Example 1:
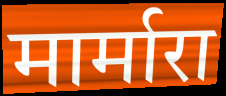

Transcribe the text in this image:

मार्मारा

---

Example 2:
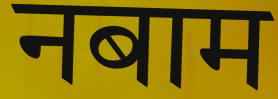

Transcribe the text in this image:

नबाम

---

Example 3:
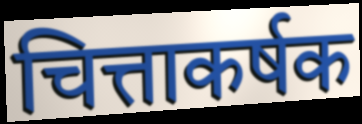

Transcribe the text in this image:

चित्ताकर्षक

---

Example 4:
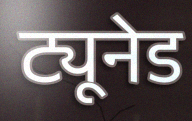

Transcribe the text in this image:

ट्यूनेड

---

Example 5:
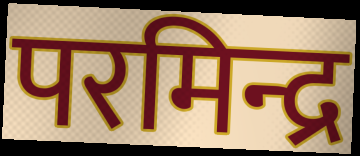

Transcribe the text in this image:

परमिन्द्र